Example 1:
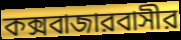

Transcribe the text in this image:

কক্সবাজারবাসীর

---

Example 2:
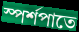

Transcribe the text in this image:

স্পর্শপাতে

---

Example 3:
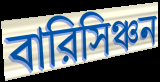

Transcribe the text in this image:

বারিসিঞ্চন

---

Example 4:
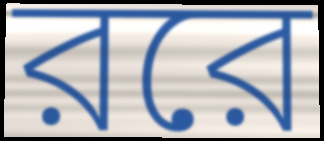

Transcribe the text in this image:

ররে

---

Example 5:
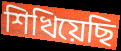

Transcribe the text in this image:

শিখিয়েছি